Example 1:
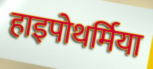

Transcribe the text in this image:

हाइपोथर्मिया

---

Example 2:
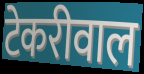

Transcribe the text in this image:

टेकरीवाल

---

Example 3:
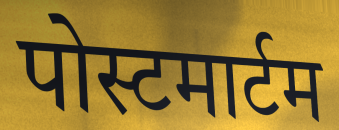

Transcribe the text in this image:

पोस्टमार्टम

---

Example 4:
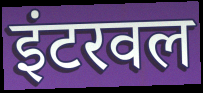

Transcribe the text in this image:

इंटरवल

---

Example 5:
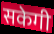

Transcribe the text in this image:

सकेगी